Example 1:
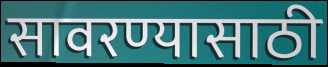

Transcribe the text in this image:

सावरण्यासाठी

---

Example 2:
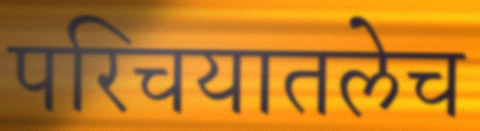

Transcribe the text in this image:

परिचयातलेच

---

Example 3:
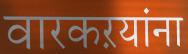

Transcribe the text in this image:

वारकऱयांना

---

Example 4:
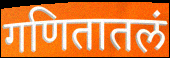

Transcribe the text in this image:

गणितातलं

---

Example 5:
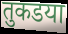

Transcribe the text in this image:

तुकडया